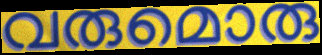
വരുമൊരു